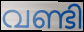
വണ്ടി